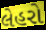
લેહરો